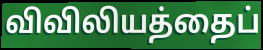
விவிலியத்தைப்